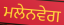
ਮਲੇਨਵੇਗ